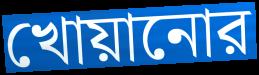
খোয়ানোর